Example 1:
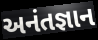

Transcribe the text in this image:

અનંતજ્ઞાન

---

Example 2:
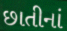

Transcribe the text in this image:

છાતીનાં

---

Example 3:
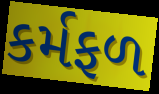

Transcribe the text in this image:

કર્મફળ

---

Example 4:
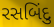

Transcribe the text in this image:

રસબિંદુ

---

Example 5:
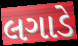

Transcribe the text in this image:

લગાડે